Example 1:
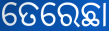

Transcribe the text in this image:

ତେରେଛା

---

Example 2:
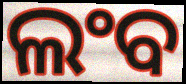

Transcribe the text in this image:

ଲଂବ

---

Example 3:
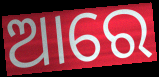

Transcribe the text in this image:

ଆରେ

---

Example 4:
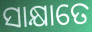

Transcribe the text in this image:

ସାକ୍ଷାତେ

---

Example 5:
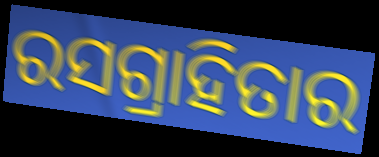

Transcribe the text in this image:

ରସଗ୍ରାହିତାର